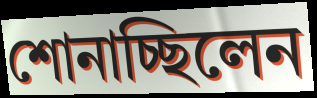
শোনাচ্ছিলেন